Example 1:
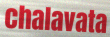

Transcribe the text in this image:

chalavata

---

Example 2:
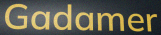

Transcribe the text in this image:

Gadamer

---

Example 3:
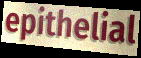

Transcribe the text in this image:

epithelial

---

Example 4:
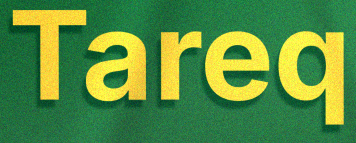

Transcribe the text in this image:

Tareq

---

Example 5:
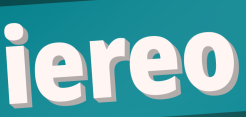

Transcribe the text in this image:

iereo